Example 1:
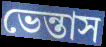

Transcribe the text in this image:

ভেন্তাস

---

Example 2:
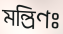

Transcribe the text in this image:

মন্ত্রিণঃ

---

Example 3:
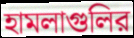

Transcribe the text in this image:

হামলাগুলির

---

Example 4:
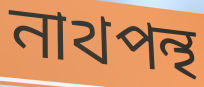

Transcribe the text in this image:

নাথপন্থ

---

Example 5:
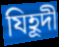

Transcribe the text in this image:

যিহূদী